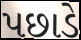
પછાડે